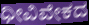
ಧೀವಿವೇಕದ